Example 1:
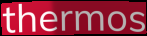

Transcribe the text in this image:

thermos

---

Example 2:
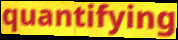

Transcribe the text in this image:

quantifying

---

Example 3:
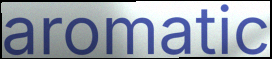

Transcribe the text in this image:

aromatic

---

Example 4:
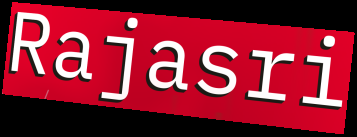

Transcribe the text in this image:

Rajasri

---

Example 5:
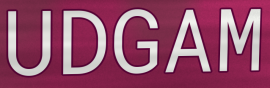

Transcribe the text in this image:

UDGAM